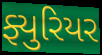
ફ્યુરિયર